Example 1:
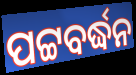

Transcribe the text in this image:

ପଟ୍ଟବର୍ଦ୍ଧନ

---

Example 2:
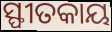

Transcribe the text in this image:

ସ୍ଫୀତକାୟ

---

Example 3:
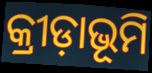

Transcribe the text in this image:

କ୍ରୀଡ଼ାଭୂମି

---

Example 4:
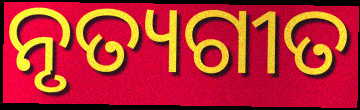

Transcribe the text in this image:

ନୃତ୍ୟଗୀତ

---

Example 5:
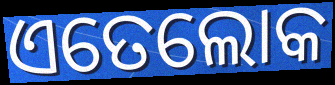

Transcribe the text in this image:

ଏତେଲୋକ